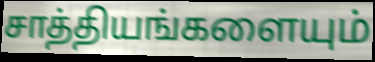
சாத்தியங்களையும்